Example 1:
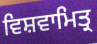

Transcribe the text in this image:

ਵਿਸ਼ਵਾਮਿਤ੍ਰ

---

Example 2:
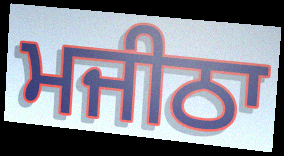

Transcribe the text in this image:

ਮਜੀਠਾ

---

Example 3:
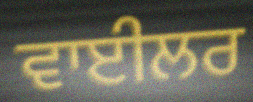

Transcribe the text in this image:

ਵਾਈਲਰ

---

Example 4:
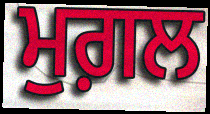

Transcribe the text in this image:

ਮੁਗ਼ਲ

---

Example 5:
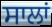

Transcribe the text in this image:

ਸਾਲਾਂ